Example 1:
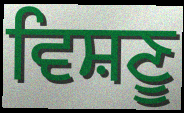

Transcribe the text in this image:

ਵਿਸ਼ਣੂ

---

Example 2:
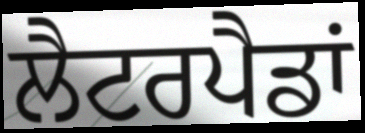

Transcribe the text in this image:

ਲੈਟਰਪੈਡਾਂ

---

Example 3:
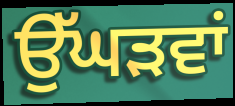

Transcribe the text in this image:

ਉੱਘੜਵਾਂ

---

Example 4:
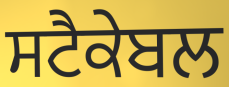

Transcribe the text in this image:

ਸਟੈਕੇਬਲ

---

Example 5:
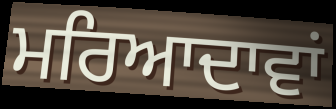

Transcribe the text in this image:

ਮਰਿਆਦਾਵਾਂ